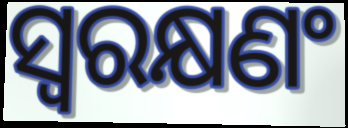
ସ୍ୱରକ୍ଷଣଂ